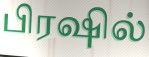
பிரஷில்